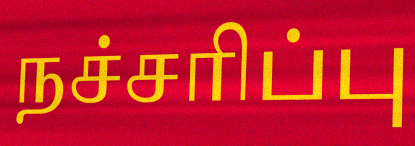
நச்சரிப்பு